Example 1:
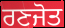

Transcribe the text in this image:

ਰਣਜੋਤ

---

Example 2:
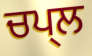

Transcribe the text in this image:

ਚਪ੍ਲ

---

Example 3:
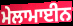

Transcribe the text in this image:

ਮੇਲਾਮਾਈਨ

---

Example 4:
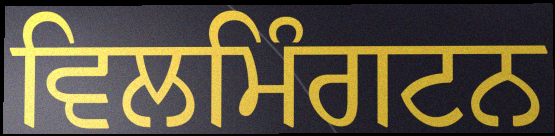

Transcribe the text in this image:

ਵਿਲਮਿੰਗਟਨ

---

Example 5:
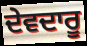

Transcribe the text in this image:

ਦੇਵਦਾਰੂ